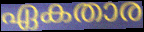
ഏകതാര